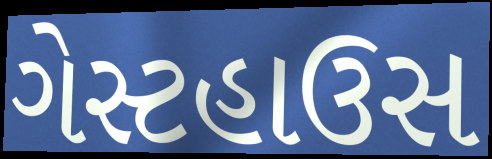
ગેસ્ટહાઉસ